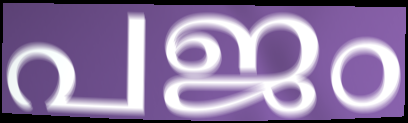
പജം